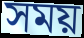
সময়